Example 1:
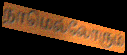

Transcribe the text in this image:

நாமெல்லோரும்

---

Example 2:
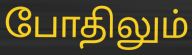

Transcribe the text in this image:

போதிலும்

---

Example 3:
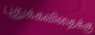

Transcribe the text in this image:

புதுக்கவிதைக்கு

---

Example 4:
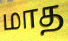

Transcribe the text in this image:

மாத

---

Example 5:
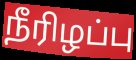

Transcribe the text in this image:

நீரிழப்பு